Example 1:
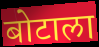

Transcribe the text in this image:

बोटाला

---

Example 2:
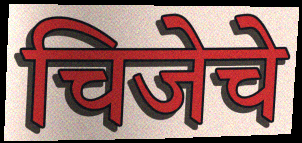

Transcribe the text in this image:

चिजेचे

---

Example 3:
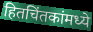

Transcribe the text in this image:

हितचिंतकांमध्ये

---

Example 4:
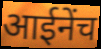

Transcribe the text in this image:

आईनेंच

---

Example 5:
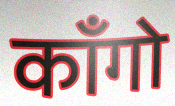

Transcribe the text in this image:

काँगो